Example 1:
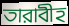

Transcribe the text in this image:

তারাবীহ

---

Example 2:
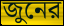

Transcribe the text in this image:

জুনের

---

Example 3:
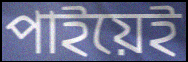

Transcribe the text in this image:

পাইয়েই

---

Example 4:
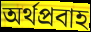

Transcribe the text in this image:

অর্থপ্রবাহ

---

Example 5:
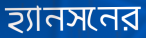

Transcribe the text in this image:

হ্যানসনের